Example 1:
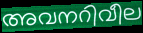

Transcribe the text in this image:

അവനറിവീല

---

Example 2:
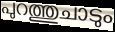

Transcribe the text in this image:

പുറത്തുചാടും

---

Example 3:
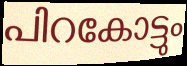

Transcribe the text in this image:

പിറകോട്ടും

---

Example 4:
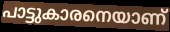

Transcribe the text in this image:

പാട്ടുകാരനെയാണ്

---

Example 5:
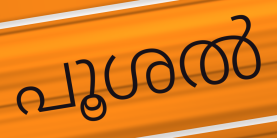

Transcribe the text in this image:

പൂശൽ